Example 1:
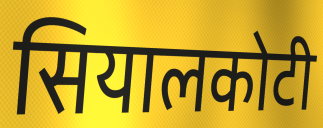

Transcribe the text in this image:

सियालकोटी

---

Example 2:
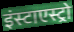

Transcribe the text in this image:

इंस्टाएस्ट्रो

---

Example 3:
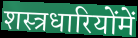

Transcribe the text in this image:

शस्त्रधारियोंमें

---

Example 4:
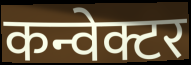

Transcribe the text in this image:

कन्वेक्टर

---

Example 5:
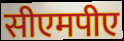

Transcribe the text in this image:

सीएमपीए